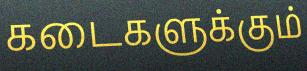
கடைகளுக்கும்